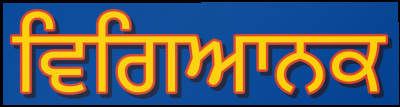
ਵਿਗਿਆਨਕ